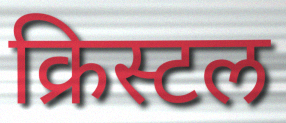
क्रिस्टल